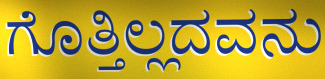
ಗೊತ್ತಿಲ್ಲದವನು